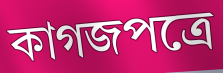
কাগজপত্রে